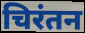
चिरंतन